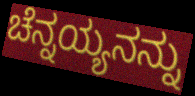
ಚೆನ್ನಯ್ಯನನ್ನು